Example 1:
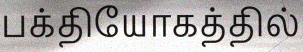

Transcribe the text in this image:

பக்தியோகத்தில்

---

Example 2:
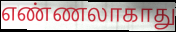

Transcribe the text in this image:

எண்ணலாகாது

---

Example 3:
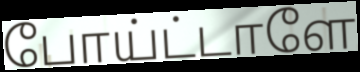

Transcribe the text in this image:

போய்ட்டாளே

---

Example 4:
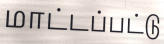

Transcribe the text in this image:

மாட்டப்பட்டு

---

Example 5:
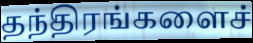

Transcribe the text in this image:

தந்திரங்களைச்